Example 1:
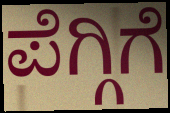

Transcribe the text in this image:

ಪೆಗ್ಗಿಗೆ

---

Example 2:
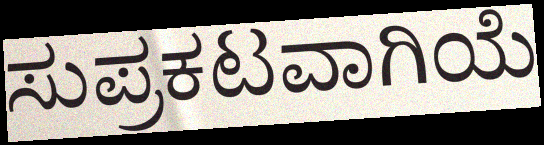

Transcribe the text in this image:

ಸುಪ್ರಕಟವಾಗಿಯೆ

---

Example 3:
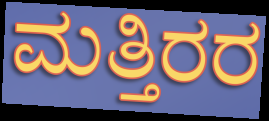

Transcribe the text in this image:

ಮತ್ತಿರರ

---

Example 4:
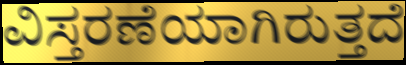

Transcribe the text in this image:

ವಿಸ್ತರಣೆಯಾಗಿರುತ್ತದೆ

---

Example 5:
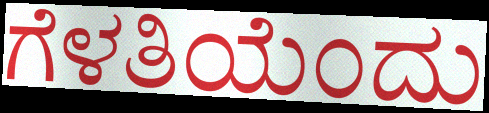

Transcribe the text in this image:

ಗೆಳತಿಯೆಂದು